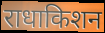
राधाकिशन